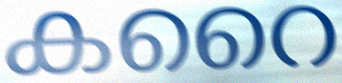
കറൈ